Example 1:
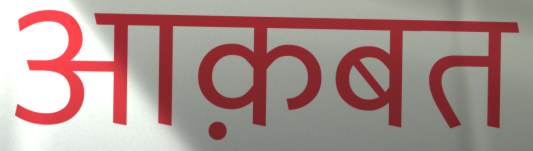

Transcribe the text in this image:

आक़बत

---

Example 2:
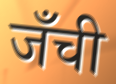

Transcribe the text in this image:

जँची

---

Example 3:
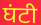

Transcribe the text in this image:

घंटी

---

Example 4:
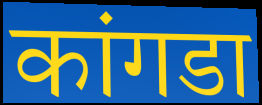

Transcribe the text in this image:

कांगडा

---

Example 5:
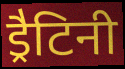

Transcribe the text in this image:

ड्रैटिनी